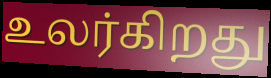
உலர்கிறது